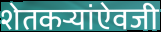
शेतकऱ्यांऐवजी